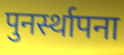
पुनर्स्थापना